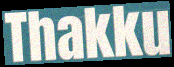
Thakku